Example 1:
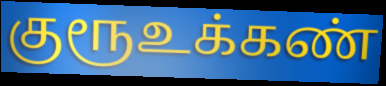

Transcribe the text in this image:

குரூஉக்கண்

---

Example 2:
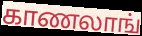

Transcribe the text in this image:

காணலாங்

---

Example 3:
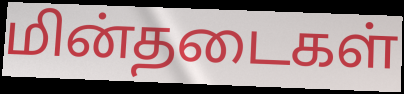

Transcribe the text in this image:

மின்தடைகள்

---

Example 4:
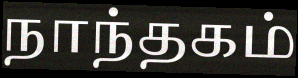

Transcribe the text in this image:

நாந்தகம்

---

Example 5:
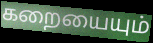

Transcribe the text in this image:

கறையையும்